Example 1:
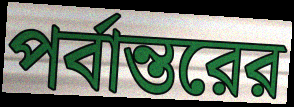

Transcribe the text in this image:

পর্বান্তরের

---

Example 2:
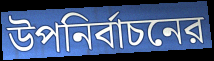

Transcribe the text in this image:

উপনির্বাচনের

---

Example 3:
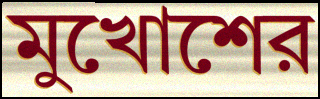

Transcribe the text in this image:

মুখোশের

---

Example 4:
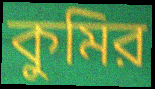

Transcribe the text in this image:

কুমির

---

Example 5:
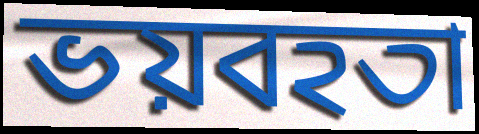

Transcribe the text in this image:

ভয়বহতা